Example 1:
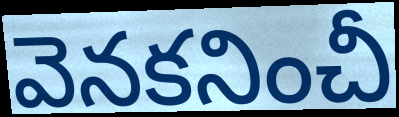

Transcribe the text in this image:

వెనకనించీ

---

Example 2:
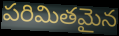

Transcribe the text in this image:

పరిమితమైన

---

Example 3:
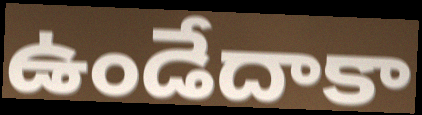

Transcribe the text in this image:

ఉండేదాకా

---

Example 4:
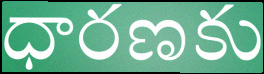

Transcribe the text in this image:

ధారణకు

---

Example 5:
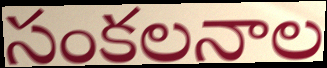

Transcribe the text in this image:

సంకలనాల